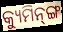
କ୍ୟୁମିନ୍‌ଙ୍ଗ